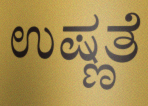
ಉಷ್ಣತೆ